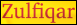
Zulfiqar